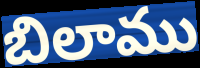
బిలాము